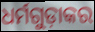
ଧର୍ମଗୁଡ଼ାକର